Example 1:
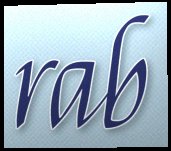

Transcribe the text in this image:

rab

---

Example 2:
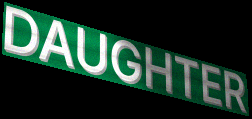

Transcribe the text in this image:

DAUGHTER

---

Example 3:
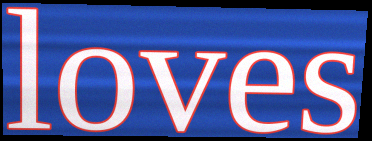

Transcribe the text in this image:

loves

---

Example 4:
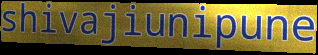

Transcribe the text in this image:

shivajiunipune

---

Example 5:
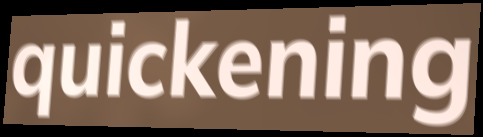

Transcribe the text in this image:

quickening